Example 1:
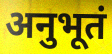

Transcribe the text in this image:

अनुभूतं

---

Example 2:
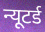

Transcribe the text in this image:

न्यूटर्ड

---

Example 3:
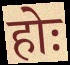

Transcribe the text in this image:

होः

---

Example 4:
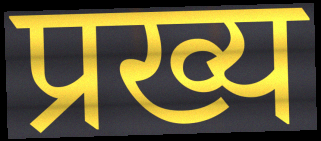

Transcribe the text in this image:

प्रख्य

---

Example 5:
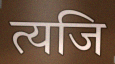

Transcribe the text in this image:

त्यजि